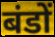
बंडों